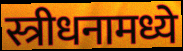
स्त्रीधनामध्ये